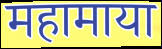
महामाया